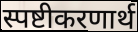
स्पष्टीकरणार्थ